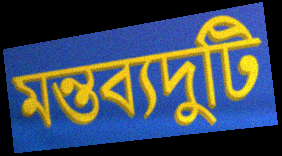
মন্তব্যদুটি